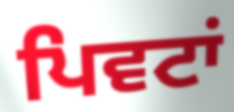
ਪਿਵਟਾਂ